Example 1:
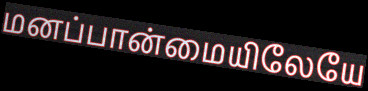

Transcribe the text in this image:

மனப்பான்மையிலேயே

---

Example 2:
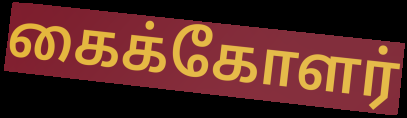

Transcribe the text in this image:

கைக்கோளர்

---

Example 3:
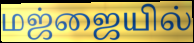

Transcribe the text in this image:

மஜ்ஜையில்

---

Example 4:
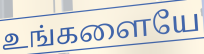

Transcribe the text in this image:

உங்களையே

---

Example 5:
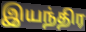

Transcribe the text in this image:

இயந்திர